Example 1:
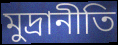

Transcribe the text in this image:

মুদ্রানীতি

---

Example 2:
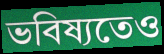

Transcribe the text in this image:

ভবিষ্যতেও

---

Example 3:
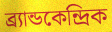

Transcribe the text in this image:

ব্র্যান্ডকেন্দ্রিক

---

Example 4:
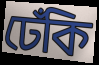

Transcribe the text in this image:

ঢেঁকি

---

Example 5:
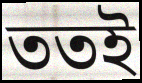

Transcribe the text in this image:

ততই